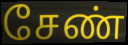
சேண்